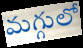
మగ్గులో